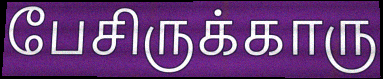
பேசிருக்காரு